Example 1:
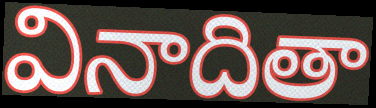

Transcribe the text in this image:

వినాదితా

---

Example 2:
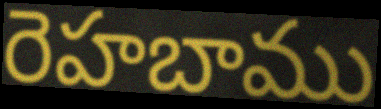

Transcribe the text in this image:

రెహబాము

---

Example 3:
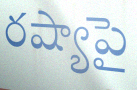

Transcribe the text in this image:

రష్యాపై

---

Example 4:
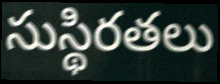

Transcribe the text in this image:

సుస్థిరతలు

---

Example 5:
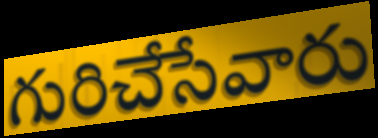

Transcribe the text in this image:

గురిచేసేవారు